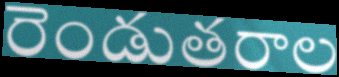
రెండుతరాల